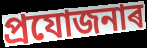
প্ৰযোজনাৰ